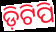
ଡ଼ିଟିପି